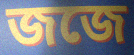
জজে